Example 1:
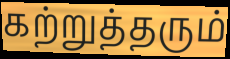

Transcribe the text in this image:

கற்றுத்தரும்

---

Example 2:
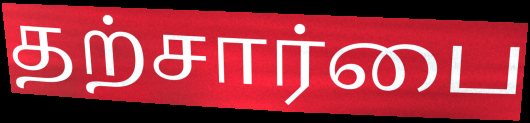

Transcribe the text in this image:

தற்சார்பை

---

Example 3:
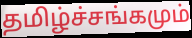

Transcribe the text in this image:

தமிழ்ச்சங்கமும்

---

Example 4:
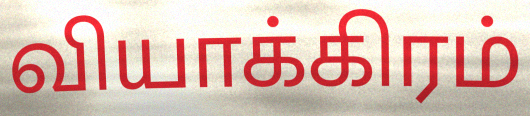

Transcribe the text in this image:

வியாக்கிரம்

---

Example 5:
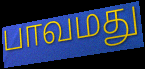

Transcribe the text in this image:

பாவமது